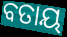
ବତାୟ